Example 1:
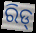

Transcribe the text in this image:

ରିଡ୍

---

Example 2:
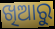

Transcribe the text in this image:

ଖିଆରୁ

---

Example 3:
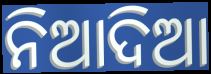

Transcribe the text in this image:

ନିଆଦିଆ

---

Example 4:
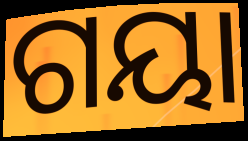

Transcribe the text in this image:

ଗୟା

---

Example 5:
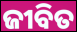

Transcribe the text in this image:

ଜୀବିତ